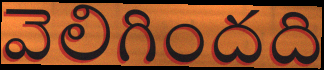
వెలిగిందది